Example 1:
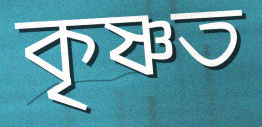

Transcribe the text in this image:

কৃষ্ণত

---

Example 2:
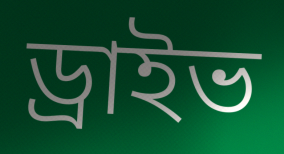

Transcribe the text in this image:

ড্ৰাইভ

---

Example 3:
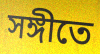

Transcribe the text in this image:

সঙ্গীতে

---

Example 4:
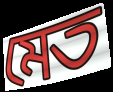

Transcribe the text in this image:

মেত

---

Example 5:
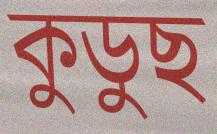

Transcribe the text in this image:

কুডুছ